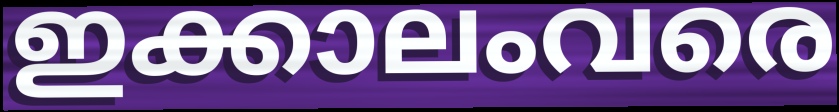
ഇക്കാലംവരെ